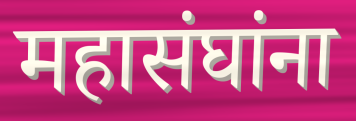
महासंघांना